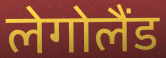
लेगोलैंड